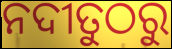
ନଦୀତୁଠରୁ